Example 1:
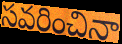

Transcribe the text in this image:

సవరించినా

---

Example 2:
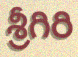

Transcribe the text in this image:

శ్రీగిరి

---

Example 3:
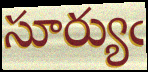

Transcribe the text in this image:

సూర్యుఁ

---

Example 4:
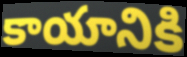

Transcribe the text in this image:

కాయానికి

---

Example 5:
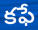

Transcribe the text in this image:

కఫే